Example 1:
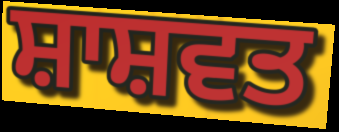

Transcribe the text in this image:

ਸ਼ਾਸ਼ਵਤ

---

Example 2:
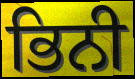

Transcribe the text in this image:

ਭਿਨੀ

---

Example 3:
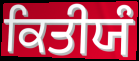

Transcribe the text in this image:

ਕਿਤੀਯੰ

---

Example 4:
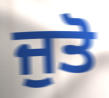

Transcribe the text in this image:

ਜੁਤੋ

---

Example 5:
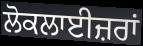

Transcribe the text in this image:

ਲੋਕਲਾਈਜ਼ਰਾਂ